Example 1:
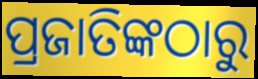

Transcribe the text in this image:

ପ୍ରଜାତିଙ୍କଠାରୁ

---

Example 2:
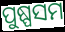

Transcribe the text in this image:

ପୁଷ୍ପସମ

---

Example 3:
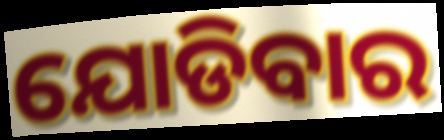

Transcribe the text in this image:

ଯୋଡିବାର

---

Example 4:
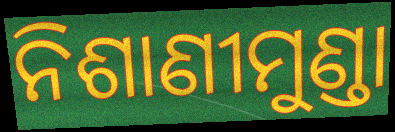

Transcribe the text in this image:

ନିଶାଣୀମୁଣ୍ଡା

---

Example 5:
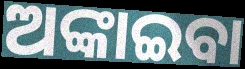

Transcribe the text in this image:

ଅଙ୍କାଇବା